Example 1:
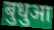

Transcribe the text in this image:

बुधुआ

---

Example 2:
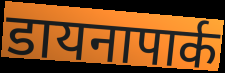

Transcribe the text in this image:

डायनापार्क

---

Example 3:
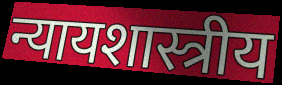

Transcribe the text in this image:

न्यायशास्त्रीय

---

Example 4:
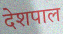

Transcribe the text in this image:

देशपाल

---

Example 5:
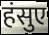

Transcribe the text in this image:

हंसुए